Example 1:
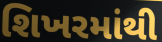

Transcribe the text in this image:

શિખરમાંથી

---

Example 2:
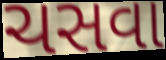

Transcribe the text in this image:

ચસવા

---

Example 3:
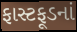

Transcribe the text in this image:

ફાસ્ટફૂડનાં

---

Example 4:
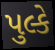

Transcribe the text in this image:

પુલ્કે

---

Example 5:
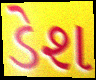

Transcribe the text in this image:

ડેશ